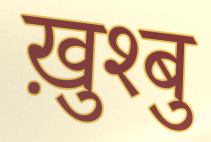
ख़ुश्बु